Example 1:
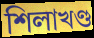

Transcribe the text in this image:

শিলাখণ্ড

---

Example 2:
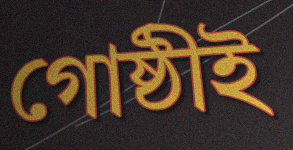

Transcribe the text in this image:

গোষ্ঠীই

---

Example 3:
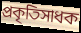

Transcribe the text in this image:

প্রকৃতিসাধক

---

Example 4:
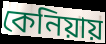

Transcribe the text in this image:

কেনিয়ায়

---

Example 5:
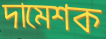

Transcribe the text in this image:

দামেশক